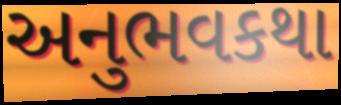
અનુભવકથા